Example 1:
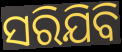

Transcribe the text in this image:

ସରିଯିବି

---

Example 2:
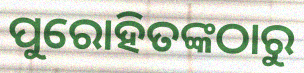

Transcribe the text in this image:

ପୁରୋହିତଙ୍କଠାରୁ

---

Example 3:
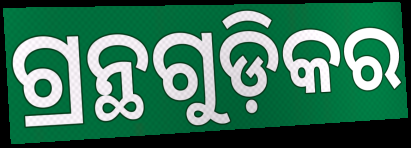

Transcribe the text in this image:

ଗ୍ରନ୍ଥଗୁଡ଼ିକର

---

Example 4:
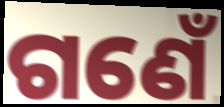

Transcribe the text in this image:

ଗଣେଁ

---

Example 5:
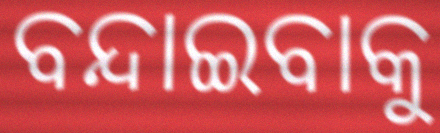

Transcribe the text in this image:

ବନ୍ଦାଇବାକୁ